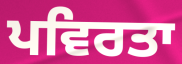
ਪਵਿਰਤਾ